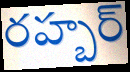
రహ్బర్